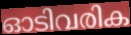
ഓടിവരിക